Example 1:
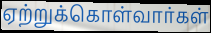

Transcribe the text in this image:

ஏற்றுக்கொள்வார்கள்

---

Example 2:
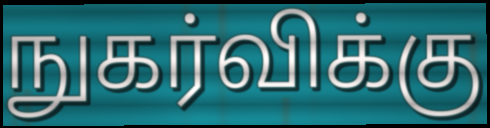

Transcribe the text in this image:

நுகர்விக்கு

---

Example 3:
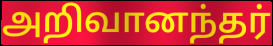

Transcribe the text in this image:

அறிவானந்தர்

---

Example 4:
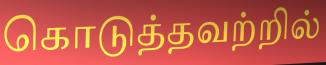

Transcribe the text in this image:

கொடுத்தவற்றில்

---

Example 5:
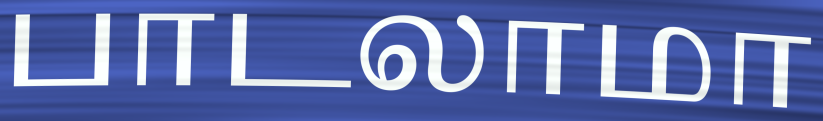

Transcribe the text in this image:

பாடலாமா